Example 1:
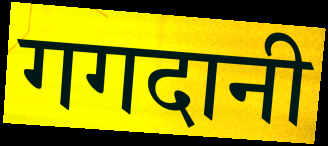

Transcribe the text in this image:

गगदानी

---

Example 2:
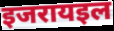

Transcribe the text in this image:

इजरायइल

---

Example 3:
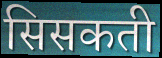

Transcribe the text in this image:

सिसकती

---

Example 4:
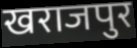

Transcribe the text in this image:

खराजपुर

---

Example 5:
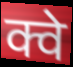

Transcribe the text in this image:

क्वे